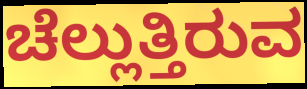
ಚೆಲ್ಲುತ್ತಿರುವ